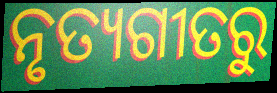
ନୃତ୍ୟଗୀତରୁ